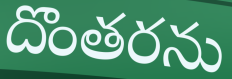
దొంతరను